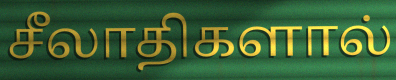
சீலாதிகளால்